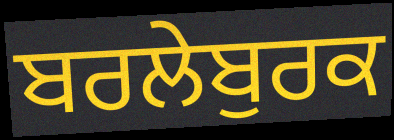
ਬਰਲੇਬੁਰਕ